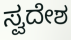
ಸ್ವದೇಶ